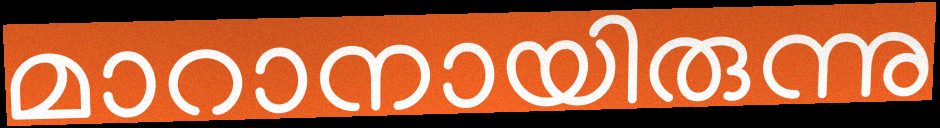
മാറാനായിരുന്നു